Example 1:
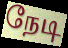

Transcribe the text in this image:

நேடி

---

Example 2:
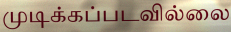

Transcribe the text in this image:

முடிக்கப்படவில்லை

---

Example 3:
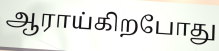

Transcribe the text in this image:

ஆராய்கிறபோது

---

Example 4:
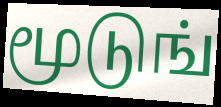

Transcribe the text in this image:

மூடுங்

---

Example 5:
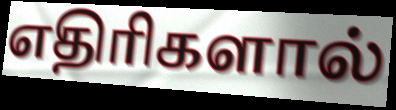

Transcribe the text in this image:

எதிரிகளால்